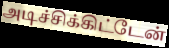
அடிச்சிக்கிட்டேன்